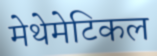
मेथेमेटिकल